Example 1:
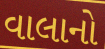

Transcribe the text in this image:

વાલાનો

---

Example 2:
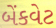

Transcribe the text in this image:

બેંકવેટ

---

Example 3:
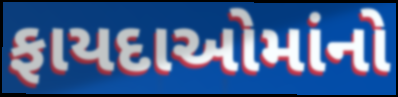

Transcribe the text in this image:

ફાયદાઓમાંનો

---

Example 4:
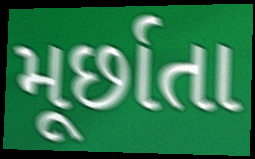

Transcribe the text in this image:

મૂર્છાતા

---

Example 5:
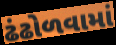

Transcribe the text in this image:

ઢંઢોળવામાં